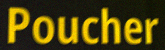
Poucher